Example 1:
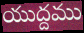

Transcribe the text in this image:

యుద్దము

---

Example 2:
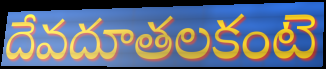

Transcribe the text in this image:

దేవదూతలకంటె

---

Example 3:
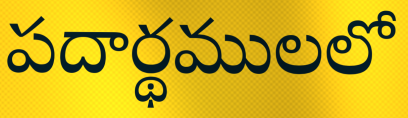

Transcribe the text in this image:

పదార్థములలో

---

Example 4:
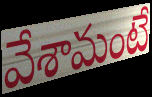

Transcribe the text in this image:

వేశామంటే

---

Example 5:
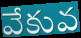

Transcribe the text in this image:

వేకువ